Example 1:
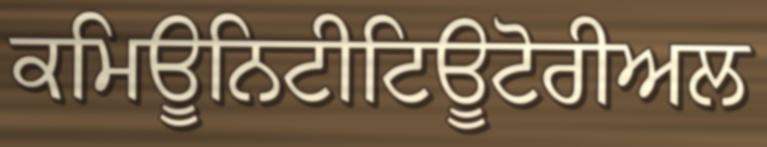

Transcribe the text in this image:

ਕਮਿਊਨਿਟੀਟਿਊਟੋਰੀਅਲ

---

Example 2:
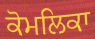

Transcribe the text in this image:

ਕੋਮਲਿਕਾ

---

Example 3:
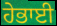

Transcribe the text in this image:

ਹੇਭਾਈ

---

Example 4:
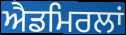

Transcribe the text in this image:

ਐਡਮਿਰਲਾਂ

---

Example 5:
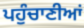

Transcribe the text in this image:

ਪਹੁੰਚਾਣੀਆਂ